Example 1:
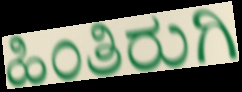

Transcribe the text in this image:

ಹಿಂತಿರುಗಿ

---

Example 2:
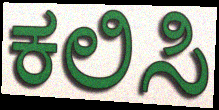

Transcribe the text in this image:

ಕಲಿಸಿ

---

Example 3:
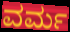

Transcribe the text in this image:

ವರ್ಮ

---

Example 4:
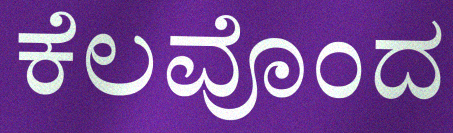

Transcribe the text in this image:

ಕೆಲವೊಂದ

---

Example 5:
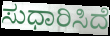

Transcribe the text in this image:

ಸುಧಾರಿಸಿದೆ